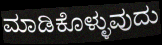
ಮಾಡಿಕೊಳ್ಳುವುದು